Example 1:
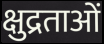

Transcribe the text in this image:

क्षुद्रताओं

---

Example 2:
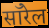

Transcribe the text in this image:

सॉरेल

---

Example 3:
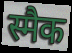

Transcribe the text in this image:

स्मैक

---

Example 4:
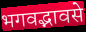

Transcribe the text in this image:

भगवद्भावसे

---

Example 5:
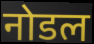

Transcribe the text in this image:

नोडल